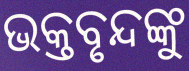
ଭକ୍ତବୃନ୍ଦଙ୍କୁ